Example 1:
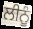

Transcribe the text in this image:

ਲੀਨੂੰ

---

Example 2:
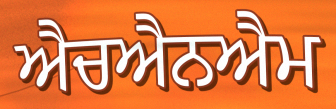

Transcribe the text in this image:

ਐਚਐਨਐਮ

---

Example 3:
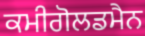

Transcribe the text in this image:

ਕਮੀਗੋਲਡਮੈਨ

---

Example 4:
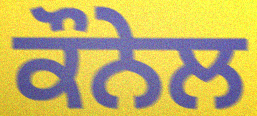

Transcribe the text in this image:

ਕੌਨੇਲ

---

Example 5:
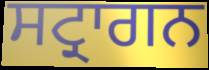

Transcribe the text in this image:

ਸਟ੍ਰਾਗਨ